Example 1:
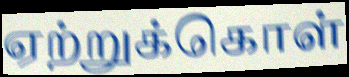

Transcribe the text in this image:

ஏற்றுக்கொள்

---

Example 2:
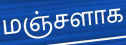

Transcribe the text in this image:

மஞ்சளாக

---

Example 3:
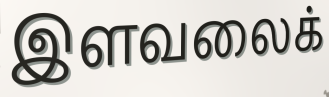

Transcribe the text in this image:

இளவலைக்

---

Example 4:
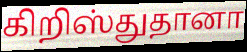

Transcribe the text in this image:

கிறிஸ்துதானா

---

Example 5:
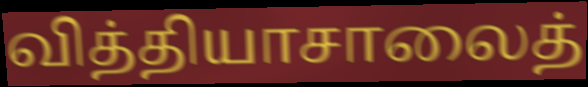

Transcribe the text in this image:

வித்தியாசாலைத்